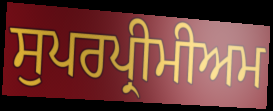
ਸੁਪਰਪ੍ਰੀਮੀਅਮ